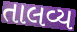
તાલવ્ય